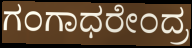
ಗಂಗಾಧರೇಂದ್ರ